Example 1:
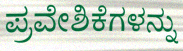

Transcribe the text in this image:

ಪ್ರವೇಶಿಕೆಗಳನ್ನು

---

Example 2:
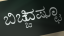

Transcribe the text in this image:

ಬಿಚ್ಚಿದಷ್ಟೂ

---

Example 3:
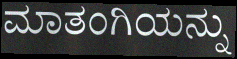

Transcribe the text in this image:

ಮಾತಂಗಿಯನ್ನು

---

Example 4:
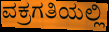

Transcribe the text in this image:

ವಕ್ರಗತಿಯಲ್ಲಿ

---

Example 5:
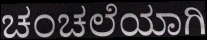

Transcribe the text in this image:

ಚಂಚಲೆಯಾಗಿ